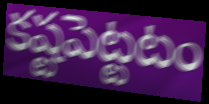
కష్టపెట్టటం